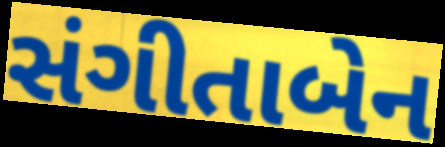
સંગીતાબેન